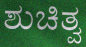
ಶುಚಿತ್ವ